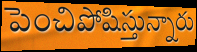
పెంచిపోషిస్తున్నారు